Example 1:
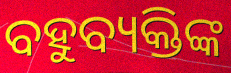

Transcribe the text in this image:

ବହୁବ୍ୟକ୍ତିଙ୍କ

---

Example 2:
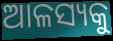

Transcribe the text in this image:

ଆଳସ୍ୟକୁ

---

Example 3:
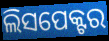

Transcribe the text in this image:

ଲିସପେକ୍ଟର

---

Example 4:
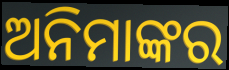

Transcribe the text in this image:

ଅନିମାଙ୍କର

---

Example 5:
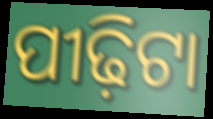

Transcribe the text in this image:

ପୀଢ଼ିଟା